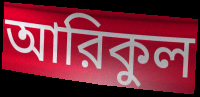
আরিকুল